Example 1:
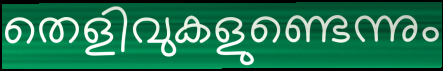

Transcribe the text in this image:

തെളിവുകളുണ്ടെന്നും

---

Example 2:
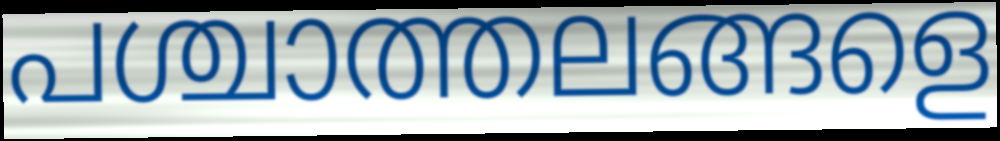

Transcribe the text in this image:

പശ്ചാത്തലങ്ങളെ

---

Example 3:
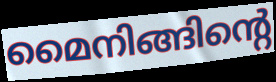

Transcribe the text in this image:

മൈനിങ്ങിന്റെ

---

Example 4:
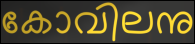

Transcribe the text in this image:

കോവിലനു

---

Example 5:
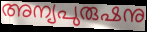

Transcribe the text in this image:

അന്യപുരുഷനു